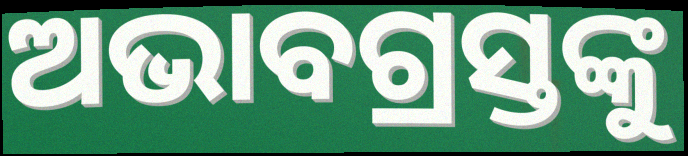
ଅଭାବଗ୍ରସ୍ତଙ୍କୁ